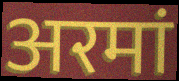
अरमां